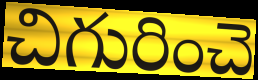
చిగురించె